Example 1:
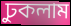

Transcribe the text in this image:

ঢুকলাম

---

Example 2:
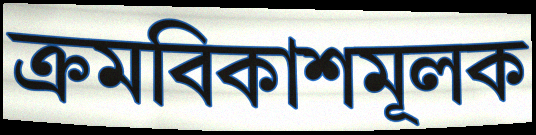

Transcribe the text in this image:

ক্রমবিকাশমূলক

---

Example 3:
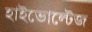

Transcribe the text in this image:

হাইভোল্টেজ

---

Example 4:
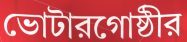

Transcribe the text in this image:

ভোটারগোষ্ঠীর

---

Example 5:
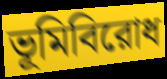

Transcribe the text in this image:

ভূমিবিরোধ